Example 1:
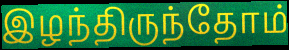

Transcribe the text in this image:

இழந்திருந்தோம்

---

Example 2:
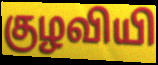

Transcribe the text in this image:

குழவியி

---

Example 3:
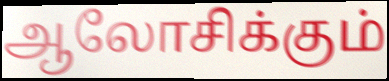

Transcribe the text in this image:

ஆலோசிக்கும்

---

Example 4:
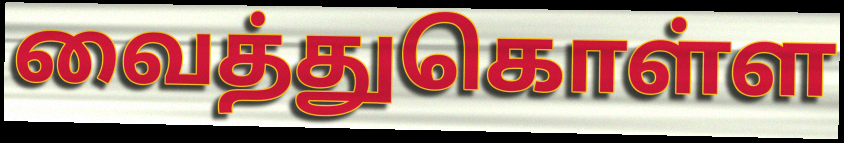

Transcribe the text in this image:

வைத்துகொள்ள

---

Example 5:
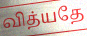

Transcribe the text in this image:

வித்யதே